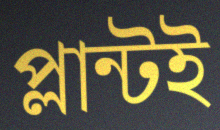
প্লান্টই